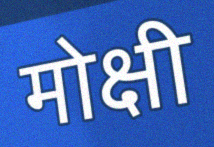
मोक्षी